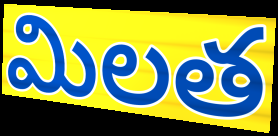
మిలత